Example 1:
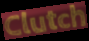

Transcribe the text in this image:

Clutch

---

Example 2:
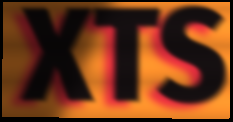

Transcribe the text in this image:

XTS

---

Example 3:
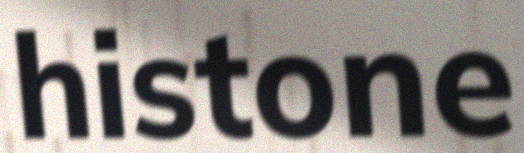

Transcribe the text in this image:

histone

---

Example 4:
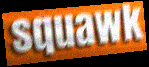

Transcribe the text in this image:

squawk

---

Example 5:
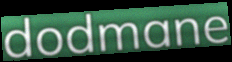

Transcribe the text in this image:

dodmane